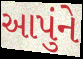
આપુંને